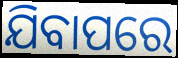
ଯିବାପରେ